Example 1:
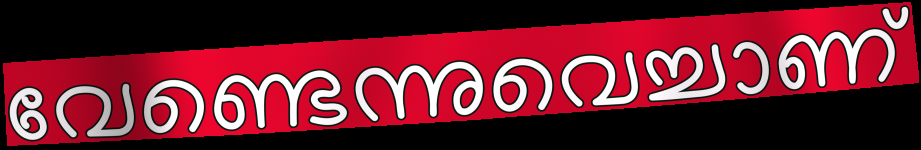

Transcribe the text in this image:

വേണ്ടെന്നുവെച്ചാണ്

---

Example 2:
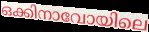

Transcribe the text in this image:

ഒക്കിനാവോയിലെ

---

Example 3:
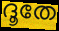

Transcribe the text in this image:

ദൂതേ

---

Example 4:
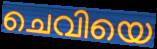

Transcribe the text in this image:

ചെവിയെ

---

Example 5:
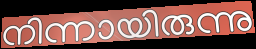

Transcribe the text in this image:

നിന്നായിരുന്നു